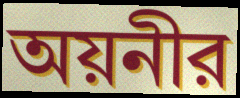
অয়নীর